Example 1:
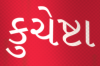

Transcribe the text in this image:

કુચેષ્ટા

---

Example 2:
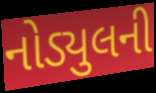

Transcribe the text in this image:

નોડ્યુલની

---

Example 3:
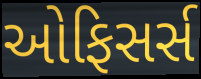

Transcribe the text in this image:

ઓફિસર્સ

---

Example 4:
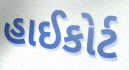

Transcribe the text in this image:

હાઈકોર્ટ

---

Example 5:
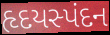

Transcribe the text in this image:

હૃદયસ્પંદન